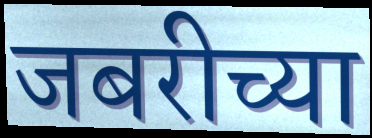
जबरीच्या